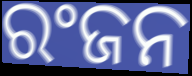
ରଂଜନ